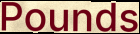
Pounds